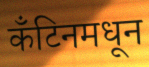
कँटिनमधून